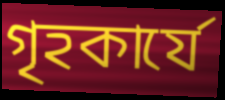
গৃহকার্যে